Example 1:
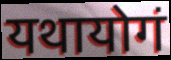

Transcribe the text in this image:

यथायोगं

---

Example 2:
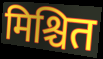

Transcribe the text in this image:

मिश्चित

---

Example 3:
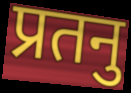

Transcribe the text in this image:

प्रतनु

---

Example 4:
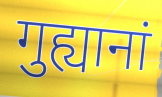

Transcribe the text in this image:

गुह्यानां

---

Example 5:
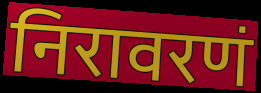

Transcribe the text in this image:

निरावरणं